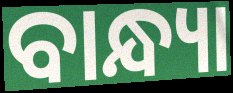
ବାନ୍ଧ୍ୟା